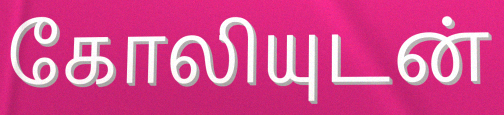
கோலியுடன்